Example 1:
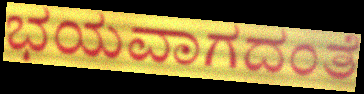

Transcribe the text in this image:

ಭಯವಾಗದಂತೆ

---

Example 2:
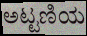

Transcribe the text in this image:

ಅಟ್ಟಣಿಯ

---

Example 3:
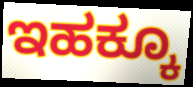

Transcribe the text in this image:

ಇಹಕ್ಕೂ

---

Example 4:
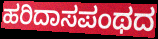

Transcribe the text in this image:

ಹರಿದಾಸಪಂಥದ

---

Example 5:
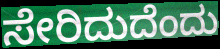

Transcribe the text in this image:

ಸೇರಿದುದೆಂದು